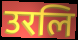
उरलि